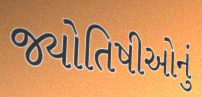
જ્યોતિષીઓનું